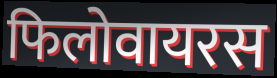
फिलोवायरस